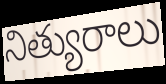
నిత్యురాలు